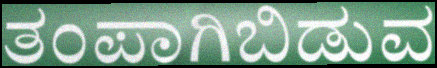
ತಂಪಾಗಿಬಿಡುವ